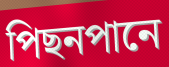
পিছনপানে